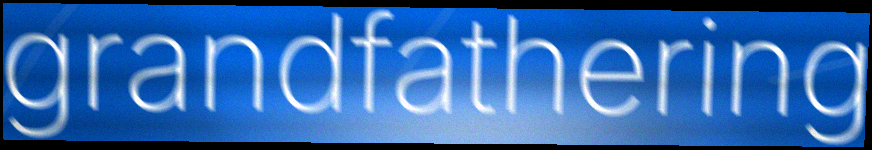
grandfathering